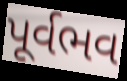
પૂર્વભવ